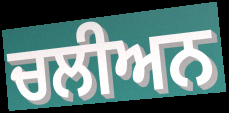
ਚਲੀਅਨ